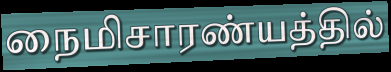
நைமிசாரண்யத்தில்